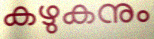
കഴുകനും